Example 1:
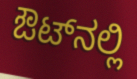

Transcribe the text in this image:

ಔಟ್‌ನಲ್ಲಿ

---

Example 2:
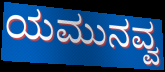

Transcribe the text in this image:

ಯಮುನವ್ವ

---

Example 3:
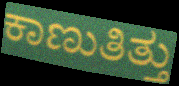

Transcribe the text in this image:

ಕಾಣುತಿತ್ತು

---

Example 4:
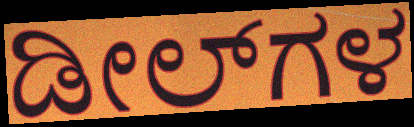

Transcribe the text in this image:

ಡೀಲ್‌ಗಳ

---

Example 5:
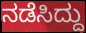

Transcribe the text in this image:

ನಡೆಸಿದ್ದು